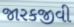
જારકજીવી